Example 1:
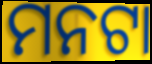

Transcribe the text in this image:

ମନଟା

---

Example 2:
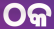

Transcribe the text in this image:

ଠକ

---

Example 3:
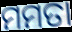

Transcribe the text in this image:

ମମତା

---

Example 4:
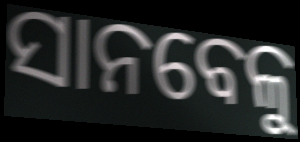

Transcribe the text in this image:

ସାନବେଳୁ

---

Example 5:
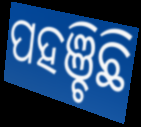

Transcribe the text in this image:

ପହଞ୍ଚିଛି